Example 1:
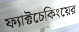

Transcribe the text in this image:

ফ্যাক্টচেকিংয়ের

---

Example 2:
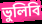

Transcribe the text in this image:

ভুলিবি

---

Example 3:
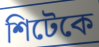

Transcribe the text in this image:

শিটেকে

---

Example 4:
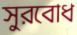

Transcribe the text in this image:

সুরবোধ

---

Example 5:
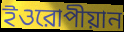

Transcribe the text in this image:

ইওরোপীয়ান